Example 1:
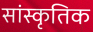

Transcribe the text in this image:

सांस्‍कृतिक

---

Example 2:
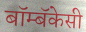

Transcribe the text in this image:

बॉम्बॅकेसी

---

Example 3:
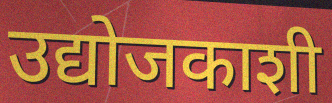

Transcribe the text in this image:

उद्योजकाशी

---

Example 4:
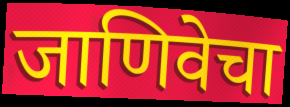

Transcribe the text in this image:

जाणिवेचा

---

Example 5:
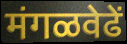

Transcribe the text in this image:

मंगळवेढें